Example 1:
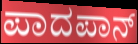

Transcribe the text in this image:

ಪಾದಪಾನ್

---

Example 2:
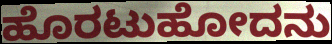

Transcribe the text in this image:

ಹೊರಟುಹೋದನು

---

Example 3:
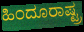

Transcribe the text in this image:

ಹಿಂದೂರಾಷ್ಟ್ರ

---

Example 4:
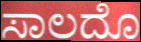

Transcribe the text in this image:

ಸಾಲದೊ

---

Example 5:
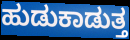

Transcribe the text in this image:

ಹುಡುಕಾಡುತ್ತ